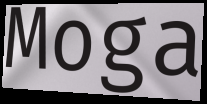
Moga